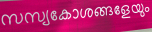
സസ്യകോശങ്ങളേയും